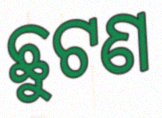
ଛୁଟଣ